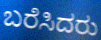
ಬರೆಸಿದರು